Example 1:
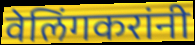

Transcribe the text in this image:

वेलिंगकरांनी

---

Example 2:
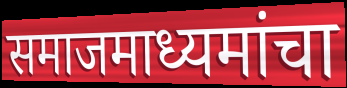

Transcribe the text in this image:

समाजमाध्यमांचा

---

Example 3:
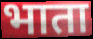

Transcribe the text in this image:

भाता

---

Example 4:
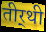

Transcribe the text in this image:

तीर्थी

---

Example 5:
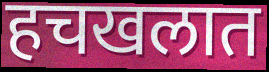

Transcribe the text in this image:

हचखलात